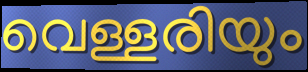
വെള്ളരിയും